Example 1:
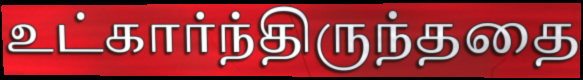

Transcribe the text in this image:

உட்கார்ந்திருந்ததை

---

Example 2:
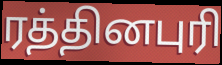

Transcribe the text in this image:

ரத்தினபுரி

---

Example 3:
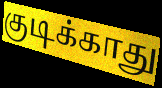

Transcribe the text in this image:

குடிக்காது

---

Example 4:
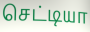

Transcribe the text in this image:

செட்டியா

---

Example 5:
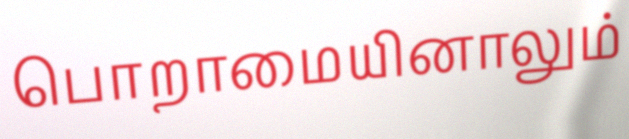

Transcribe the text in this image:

பொறாமையினாலும்